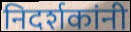
निदर्शकांनी